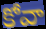
కోవా